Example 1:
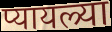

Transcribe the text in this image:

प्यायल्या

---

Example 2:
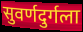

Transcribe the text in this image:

सुवर्णदुर्गला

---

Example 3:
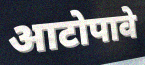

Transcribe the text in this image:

आटोपावे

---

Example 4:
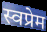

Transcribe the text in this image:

स्वप्रेम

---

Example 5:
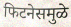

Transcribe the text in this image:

फिटनेसमुळे